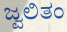
ಜ್ವಲಿತಂ